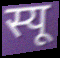
स्यू